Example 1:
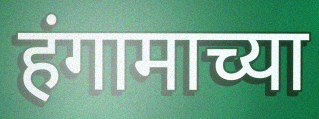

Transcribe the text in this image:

हंगामाच्या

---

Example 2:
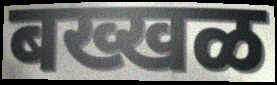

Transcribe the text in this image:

बख्खळ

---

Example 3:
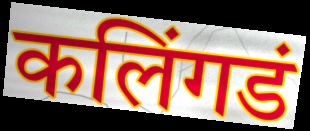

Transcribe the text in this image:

कलिंगडं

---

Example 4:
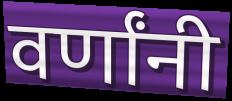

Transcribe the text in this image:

वर्णांनी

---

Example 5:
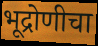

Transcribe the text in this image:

भूद्रोणीचा